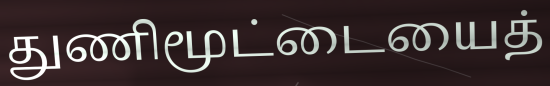
துணிமூட்டையைத்